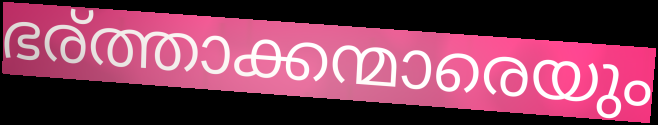
ഭര്ത്താക്കന്മാരെയും